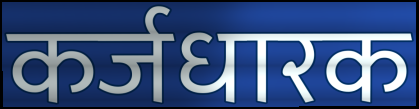
कर्जधारक